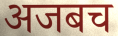
अजबच